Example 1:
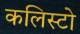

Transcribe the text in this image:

कलिस्टो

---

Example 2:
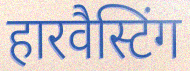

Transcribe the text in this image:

हारवैस्टिंग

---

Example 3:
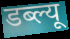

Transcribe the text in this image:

डब्ल्यू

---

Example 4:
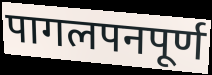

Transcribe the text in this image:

पागलपनपूर्ण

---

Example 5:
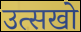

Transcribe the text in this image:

उत्सखो